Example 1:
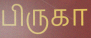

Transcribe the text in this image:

பிருகா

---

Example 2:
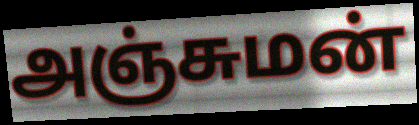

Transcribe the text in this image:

அஞ்சுமன்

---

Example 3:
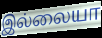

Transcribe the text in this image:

இல்லையா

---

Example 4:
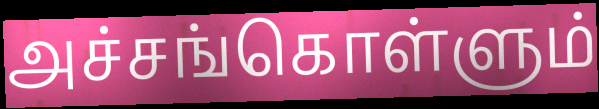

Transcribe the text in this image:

அச்சங்கொள்ளும்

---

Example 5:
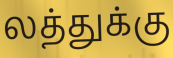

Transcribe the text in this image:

லத்துக்கு